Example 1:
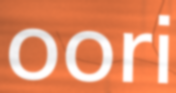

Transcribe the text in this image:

oori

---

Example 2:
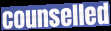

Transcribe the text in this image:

counselled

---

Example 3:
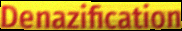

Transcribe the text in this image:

Denazification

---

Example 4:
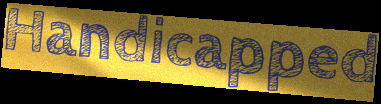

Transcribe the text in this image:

Handicapped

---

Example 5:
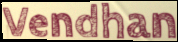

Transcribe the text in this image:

Vendhan